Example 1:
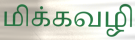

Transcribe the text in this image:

மிக்கவழி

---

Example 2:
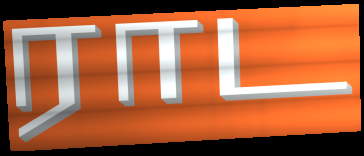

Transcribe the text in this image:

ராட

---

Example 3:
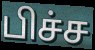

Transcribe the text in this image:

பிச்ச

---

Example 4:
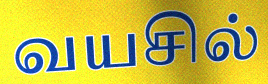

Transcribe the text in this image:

வயசில்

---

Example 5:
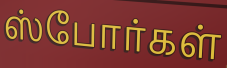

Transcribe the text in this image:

ஸ்போர்கள்